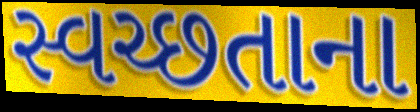
સ્વચ્છતાના